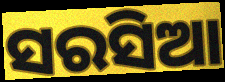
ସରସିଆ